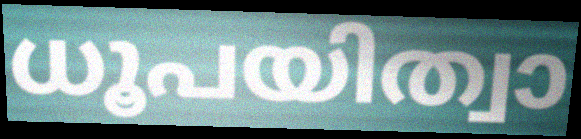
ധൂപയിത്വാ